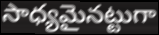
సాధ్యమైనట్టుగా